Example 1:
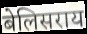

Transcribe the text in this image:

बेलिसराय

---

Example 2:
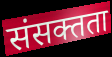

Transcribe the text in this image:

संसक्तता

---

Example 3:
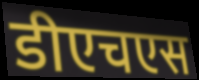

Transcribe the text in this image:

डीएचएस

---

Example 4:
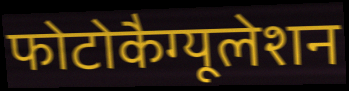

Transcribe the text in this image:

फोटोकैग्यूलेशन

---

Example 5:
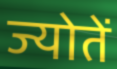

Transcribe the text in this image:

ज्योतें